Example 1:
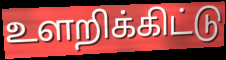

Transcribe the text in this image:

உளறிக்கிட்டு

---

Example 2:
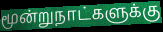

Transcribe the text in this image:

மூன்றுநாட்களுக்கு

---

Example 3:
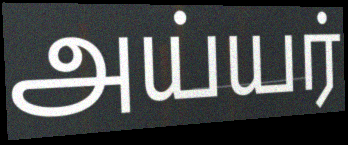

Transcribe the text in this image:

அய்யர்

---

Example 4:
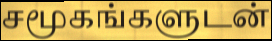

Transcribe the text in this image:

சமூகங்களுடன்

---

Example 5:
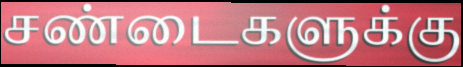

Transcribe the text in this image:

சண்டைகளுக்கு